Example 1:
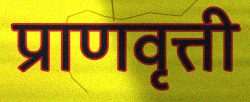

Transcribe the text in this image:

प्राणवृत्ती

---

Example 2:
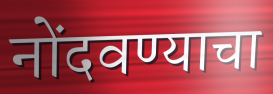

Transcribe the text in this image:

नोंदवण्याचा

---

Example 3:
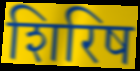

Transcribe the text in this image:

शिरिष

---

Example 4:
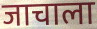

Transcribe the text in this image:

जाचाला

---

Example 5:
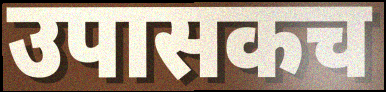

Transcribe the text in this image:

उपासकच